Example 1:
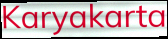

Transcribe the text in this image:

Karyakarta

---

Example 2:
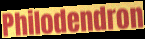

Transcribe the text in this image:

Philodendron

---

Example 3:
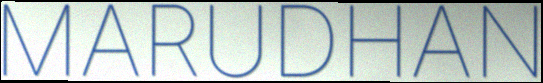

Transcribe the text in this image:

MARUDHAN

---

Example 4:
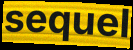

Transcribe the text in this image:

sequel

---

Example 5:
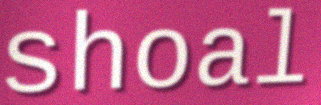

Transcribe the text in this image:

shoal